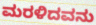
ಮರಳಿದವನು